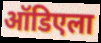
ऑडिएला